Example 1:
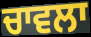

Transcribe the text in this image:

ਚਾਵਲਾ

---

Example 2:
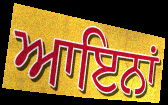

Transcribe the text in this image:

ਆਇਨਾਂ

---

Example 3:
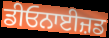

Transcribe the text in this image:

ਡੀਓਨਾਈਜ਼ਡ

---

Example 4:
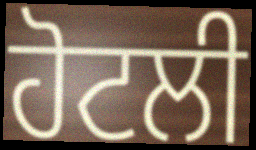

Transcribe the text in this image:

ਹੋਟਲੀ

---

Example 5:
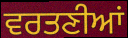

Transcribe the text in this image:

ਵਰਤਣੀਆਂ